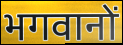
भगवानों